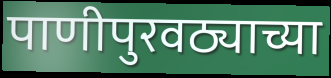
पाणीपुरवठ्याच्या